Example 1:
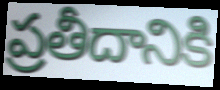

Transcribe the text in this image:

ప్రతీదానికి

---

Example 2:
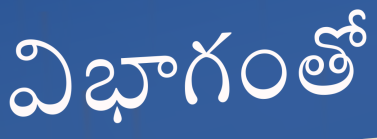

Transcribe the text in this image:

విభాగంతో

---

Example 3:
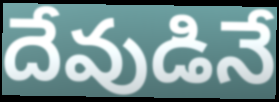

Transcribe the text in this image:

దేవుడినే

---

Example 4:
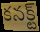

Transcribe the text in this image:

కనక్ట్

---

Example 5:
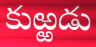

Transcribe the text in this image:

కుఱ్ఱడు